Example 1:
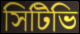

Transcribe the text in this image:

সিটিভি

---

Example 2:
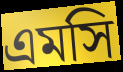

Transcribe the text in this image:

এমসি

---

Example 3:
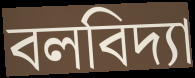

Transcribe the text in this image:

বলবিদ্যা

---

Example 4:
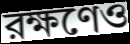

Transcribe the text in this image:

রক্ষণেও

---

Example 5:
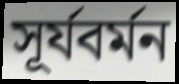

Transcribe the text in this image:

সূর্যবর্মন